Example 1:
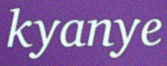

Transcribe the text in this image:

kyanye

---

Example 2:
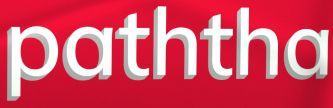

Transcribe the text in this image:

paththa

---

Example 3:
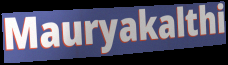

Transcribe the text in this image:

Mauryakalthi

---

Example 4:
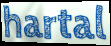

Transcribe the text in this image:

hartal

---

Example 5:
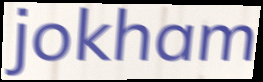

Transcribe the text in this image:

jokham